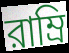
রাম্রি